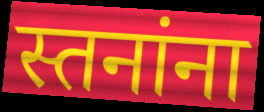
स्तनांना